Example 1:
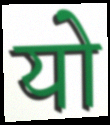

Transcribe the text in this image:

यो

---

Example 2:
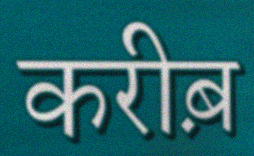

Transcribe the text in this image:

करीब़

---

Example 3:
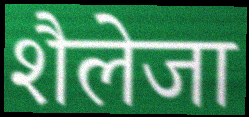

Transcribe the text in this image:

शैलेजा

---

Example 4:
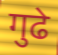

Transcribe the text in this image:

गुढे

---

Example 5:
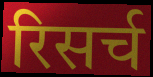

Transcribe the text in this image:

रिसर्च